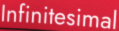
Infinitesimal